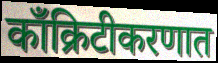
काँक्रिटीकरणात